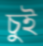
চুই